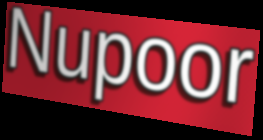
Nupoor